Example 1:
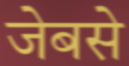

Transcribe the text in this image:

जेबसे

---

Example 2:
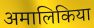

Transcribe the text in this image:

अमालिकिया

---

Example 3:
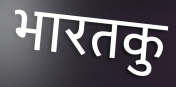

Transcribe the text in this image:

भारतकु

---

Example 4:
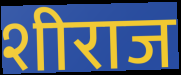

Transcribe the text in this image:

शीराज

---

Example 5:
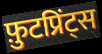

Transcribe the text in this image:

फ़ुटप्रिंट्स